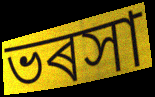
ভৰসা